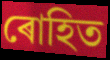
ৰোহিত